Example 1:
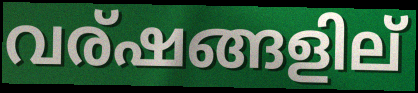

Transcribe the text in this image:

വര്ഷങ്ങളില്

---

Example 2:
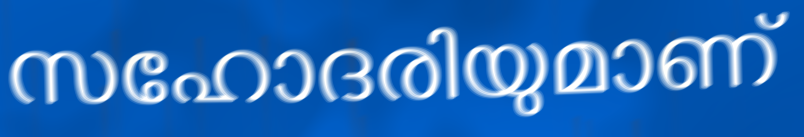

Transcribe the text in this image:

സഹോദരിയുമാണ്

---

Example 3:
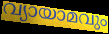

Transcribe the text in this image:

വ്യായാമവും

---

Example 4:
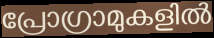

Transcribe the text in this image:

പ്രോഗ്രാമുകളിൽ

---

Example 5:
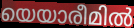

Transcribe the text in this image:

യെയാരീമിൽ